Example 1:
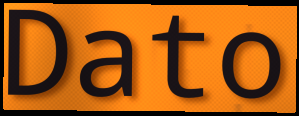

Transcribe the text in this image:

Dato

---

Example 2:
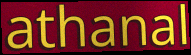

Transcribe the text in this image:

athanal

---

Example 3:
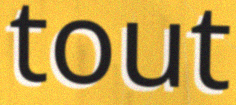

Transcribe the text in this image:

tout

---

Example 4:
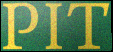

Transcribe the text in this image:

PIT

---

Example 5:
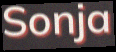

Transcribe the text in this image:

Sonja